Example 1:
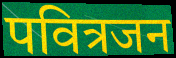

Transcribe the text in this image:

पवित्रजन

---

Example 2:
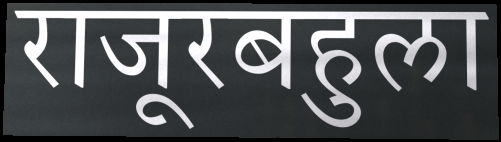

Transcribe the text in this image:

राजूरबहुला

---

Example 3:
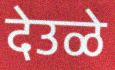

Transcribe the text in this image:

देउळे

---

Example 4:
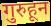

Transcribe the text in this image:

गुरुहून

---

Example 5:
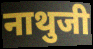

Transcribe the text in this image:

नाथुजी